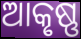
ଆକୃଷ୍ଣ